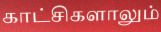
காட்சிகளாலும்